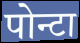
पोन्टा